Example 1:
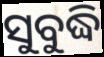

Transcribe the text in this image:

ସୁବୁଦ୍ଧି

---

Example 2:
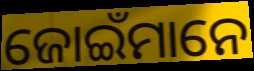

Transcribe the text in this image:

ଜୋଇଁମାନେ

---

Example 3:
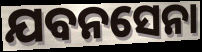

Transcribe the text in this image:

ଯବନସେନା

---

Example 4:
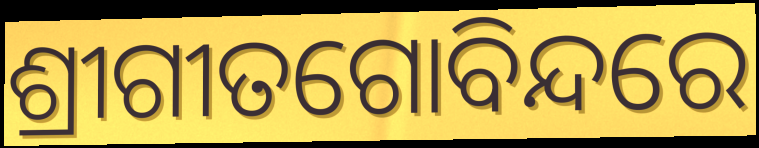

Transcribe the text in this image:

ଶ୍ରୀଗୀତଗୋବିନ୍ଦରେ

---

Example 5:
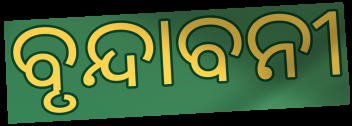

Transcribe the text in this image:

ବୃନ୍ଦାବନୀ